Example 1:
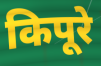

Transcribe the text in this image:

किपूरे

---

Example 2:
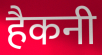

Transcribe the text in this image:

हैकनी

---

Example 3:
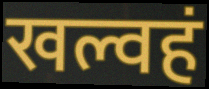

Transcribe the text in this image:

खल्वहं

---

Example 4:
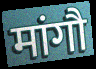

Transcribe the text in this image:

मांगौ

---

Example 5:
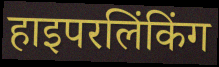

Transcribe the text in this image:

हाइपरलिंकिंग